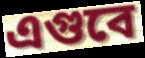
এগুবে